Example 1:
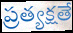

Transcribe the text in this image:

ప్రత్యక్షతే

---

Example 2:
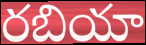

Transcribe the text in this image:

రబియా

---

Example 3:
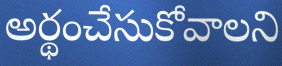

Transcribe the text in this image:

అర్థంచేసుకోవాలని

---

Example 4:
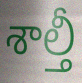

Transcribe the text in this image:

శాల్తీ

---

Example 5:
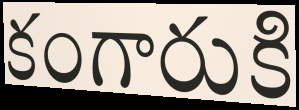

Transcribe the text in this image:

కంగారుకి